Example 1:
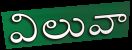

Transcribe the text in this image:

విలువా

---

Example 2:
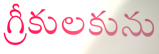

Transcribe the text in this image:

గ్రీకులకును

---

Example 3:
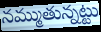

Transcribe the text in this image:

నమ్ముతున్నట్టు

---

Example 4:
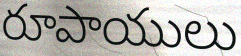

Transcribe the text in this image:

రూపాయులు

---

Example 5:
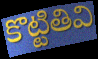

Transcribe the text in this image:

కొట్టితివి